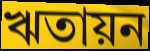
ঋতায়ন